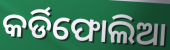
କର୍ଡିଫୋଲିଆ